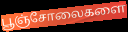
பூஞ்சோலைகளை